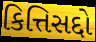
કિત્તિસદ્દો